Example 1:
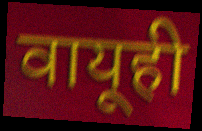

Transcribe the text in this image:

वायूही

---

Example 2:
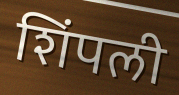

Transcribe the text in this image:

शिंपली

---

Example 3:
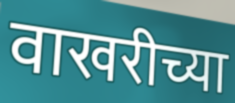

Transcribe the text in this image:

वाखरीच्या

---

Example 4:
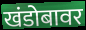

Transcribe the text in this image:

खंडोबावर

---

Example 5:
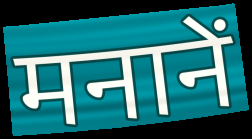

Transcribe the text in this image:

मनानें